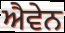
ਐਵੇਨ